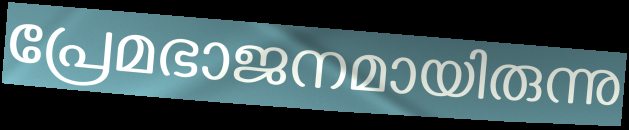
പ്രേമഭാജനമായിരുന്നു